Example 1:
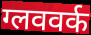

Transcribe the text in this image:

ग्लववर्क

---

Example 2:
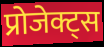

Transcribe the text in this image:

प्रोजेक्ट्स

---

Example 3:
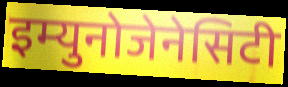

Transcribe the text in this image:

इम्युनोजेनेसिटी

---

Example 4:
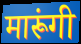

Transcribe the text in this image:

मारूंगी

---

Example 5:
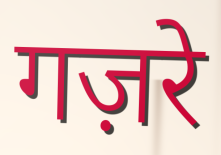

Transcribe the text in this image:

गज़रे